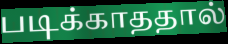
படிக்காததால்